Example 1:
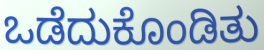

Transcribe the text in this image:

ಒಡೆದುಕೊಂಡಿತು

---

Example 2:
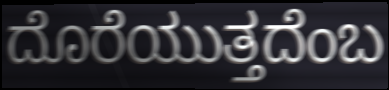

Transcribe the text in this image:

ದೊರೆಯುತ್ತದೆಂಬ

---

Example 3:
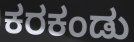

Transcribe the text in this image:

ಕರಕಂಡು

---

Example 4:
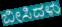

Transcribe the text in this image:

ಬೀಸಿದಳು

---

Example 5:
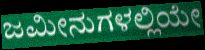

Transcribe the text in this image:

ಜಮೀನುಗಳಲ್ಲಿಯೇ